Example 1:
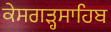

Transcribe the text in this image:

ਕੇਸਗੜ੍ਹਸਾਹਿਬ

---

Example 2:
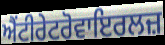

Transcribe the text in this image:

ਐਂਟੀਰੇਟਰੋਵਾਇਰਲਜ਼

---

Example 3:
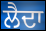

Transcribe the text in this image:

ਲੈਦਾ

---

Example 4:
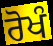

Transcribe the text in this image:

ਰੋਖੰ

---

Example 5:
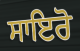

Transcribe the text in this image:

ਸਾਇਰੋ